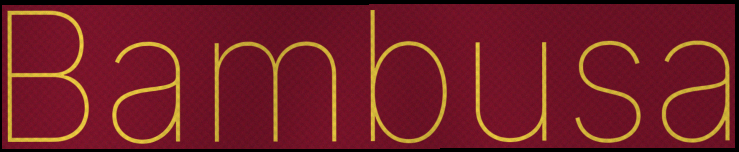
Bambusa